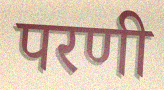
परणी